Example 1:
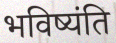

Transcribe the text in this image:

भविष्यंति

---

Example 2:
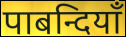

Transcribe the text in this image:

पाबन्दियाँ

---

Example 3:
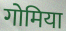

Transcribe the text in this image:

गोमिया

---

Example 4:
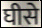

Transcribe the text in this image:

घीसे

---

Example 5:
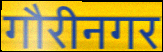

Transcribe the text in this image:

गौरीनगर